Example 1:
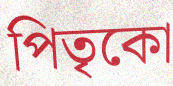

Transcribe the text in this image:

পিতৃকো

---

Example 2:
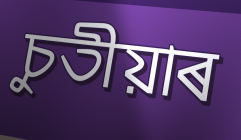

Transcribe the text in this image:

চুতীয়াৰ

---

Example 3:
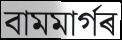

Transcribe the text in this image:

বামমাৰ্গৰ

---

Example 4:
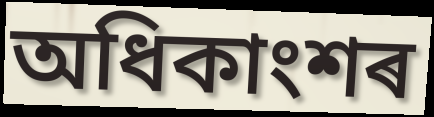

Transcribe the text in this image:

অধিকাংশৰ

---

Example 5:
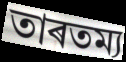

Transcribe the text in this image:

তাৰতম্য